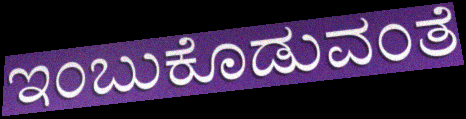
ಇಂಬುಕೊಡುವಂತೆ